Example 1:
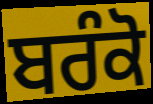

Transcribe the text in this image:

ਬਰੰਕੋ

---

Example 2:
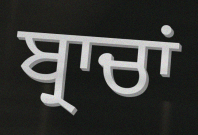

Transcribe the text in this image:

ਬ੍ਰਾਚਾਂ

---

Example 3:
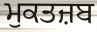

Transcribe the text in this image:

ਮੁਕਤਜ਼ਬ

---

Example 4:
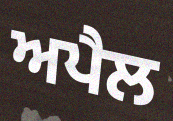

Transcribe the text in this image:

ਅਪੈਲ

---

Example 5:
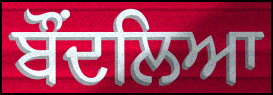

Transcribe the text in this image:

ਬੌਂਦਲਿਆ